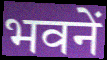
भवनें